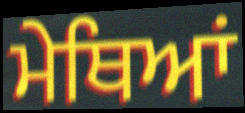
ਮੇਥਿਆਂ